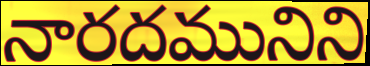
నారదమునిని